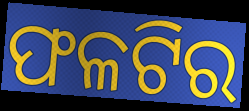
ଫଳଟିର